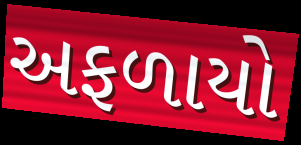
અફળાયો